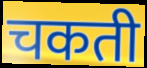
चकती